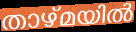
താഴ്മയിൽ